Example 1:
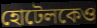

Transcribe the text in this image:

হোটেলকেও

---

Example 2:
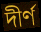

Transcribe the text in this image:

দীর্ণ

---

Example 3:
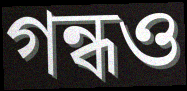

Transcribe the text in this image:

গন্ধও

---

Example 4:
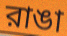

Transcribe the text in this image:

রাঙা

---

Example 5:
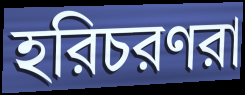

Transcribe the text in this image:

হরিচরণরা